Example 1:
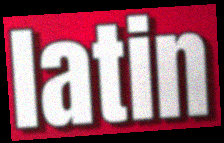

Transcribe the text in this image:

latin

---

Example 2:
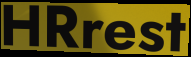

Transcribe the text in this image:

HRrest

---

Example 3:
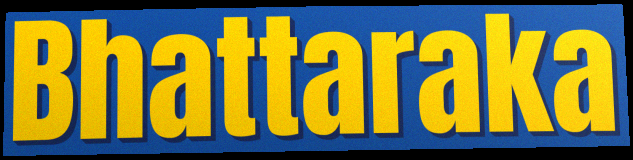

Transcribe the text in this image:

Bhattaraka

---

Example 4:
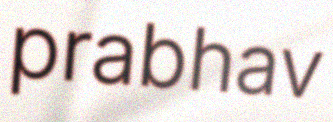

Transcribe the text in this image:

prabhav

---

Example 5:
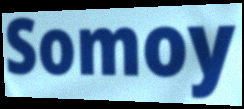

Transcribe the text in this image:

Somoy